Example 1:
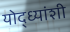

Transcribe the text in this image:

योद्ध्यांशी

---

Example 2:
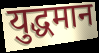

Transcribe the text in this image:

युद्धमान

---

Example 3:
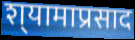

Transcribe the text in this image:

श्यामाप्रसाद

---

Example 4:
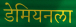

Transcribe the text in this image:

डेमियनला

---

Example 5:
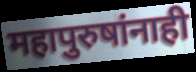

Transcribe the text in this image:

महापुरुषांनाही